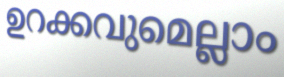
ഉറക്കവുമെല്ലാം